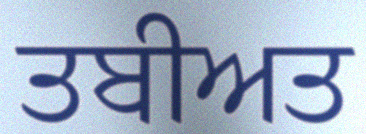
ਤਬੀਅਤ